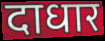
दाधार